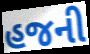
હજની